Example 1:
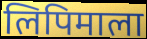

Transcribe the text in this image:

लिपिमाला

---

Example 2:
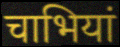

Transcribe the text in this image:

चाभियां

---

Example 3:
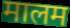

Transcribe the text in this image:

मालम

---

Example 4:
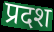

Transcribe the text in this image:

प्रदश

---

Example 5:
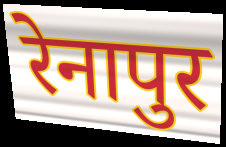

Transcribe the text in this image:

रेनापुर